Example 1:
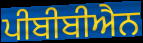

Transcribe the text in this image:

ਪੀਬੀਬੀਐਨ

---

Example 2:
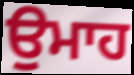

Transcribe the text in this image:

ਉਮਾਹ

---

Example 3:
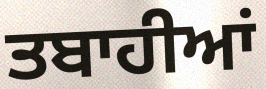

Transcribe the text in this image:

ਤਬਾਹੀਆਂ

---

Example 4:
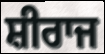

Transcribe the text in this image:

ਸ਼ੀਰਾਜ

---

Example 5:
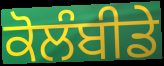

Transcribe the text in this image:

ਕੋਲੰਬੀਡੇ